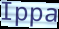
Ippa